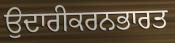
ਉਦਾਰੀਕਰਨਭਾਰਤ